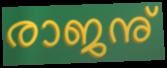
രാജനു്